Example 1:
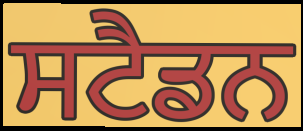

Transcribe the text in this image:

ਸਟੈਡਨ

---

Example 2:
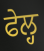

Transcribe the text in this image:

ਫੇਲ੍ਹ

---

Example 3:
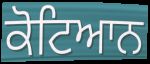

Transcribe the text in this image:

ਕੋਟਿਆਨ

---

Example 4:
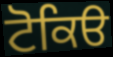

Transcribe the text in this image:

ਟੋਕਿੳ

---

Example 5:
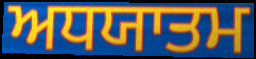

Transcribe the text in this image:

ਅਧਯਾਤਮ